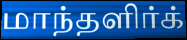
மாந்தளிர்க்